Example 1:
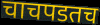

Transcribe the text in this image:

चाचपडतच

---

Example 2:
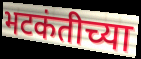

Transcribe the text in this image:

भटकंतीच्या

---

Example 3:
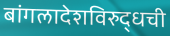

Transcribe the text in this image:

बांगलादेशविरुद्धची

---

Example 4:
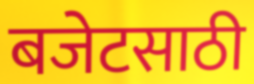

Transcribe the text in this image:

बजेटसाठी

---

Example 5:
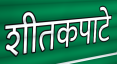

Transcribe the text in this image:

शीतकपाटे